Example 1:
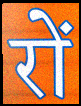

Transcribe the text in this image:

रों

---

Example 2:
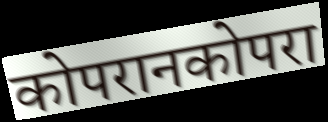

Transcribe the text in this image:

कोपरानकोपरा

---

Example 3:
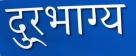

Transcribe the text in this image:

दुर्भाग्य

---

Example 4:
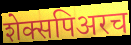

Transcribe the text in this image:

शेक्सपिअरच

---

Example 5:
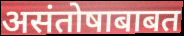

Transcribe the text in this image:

असंतोषाबाबत